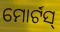
ମୋର୍ଟସ୍